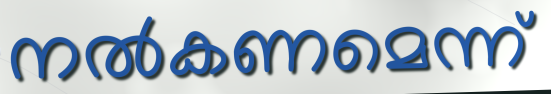
നൽകണമെന്ന്